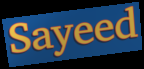
Sayeed